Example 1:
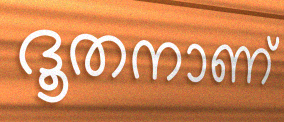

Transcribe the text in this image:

ദൂതനാണ്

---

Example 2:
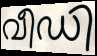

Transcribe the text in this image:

വീഡി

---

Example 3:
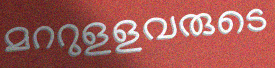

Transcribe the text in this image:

മററുളളവരുടെ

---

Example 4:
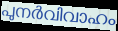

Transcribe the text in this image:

പുനർവിവാഹം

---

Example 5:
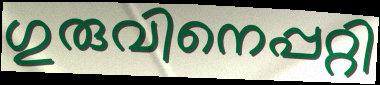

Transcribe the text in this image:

ഗുരുവിനെപ്പറ്റി